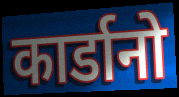
कार्डानो